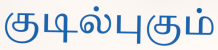
குடில்புகும்